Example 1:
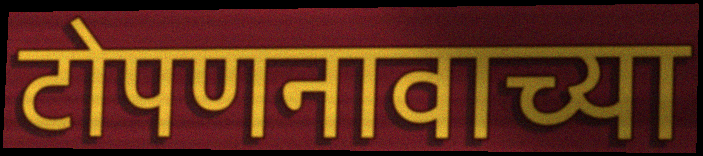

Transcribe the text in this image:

टोपणनावाच्या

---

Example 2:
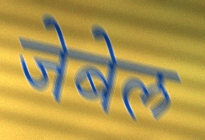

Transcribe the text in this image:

जेबेल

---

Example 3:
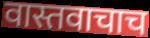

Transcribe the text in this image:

वास्तवाचाच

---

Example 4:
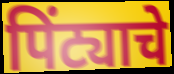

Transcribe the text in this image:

पिंट्याचे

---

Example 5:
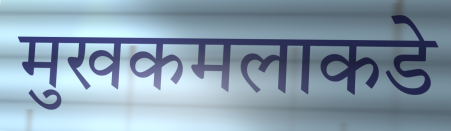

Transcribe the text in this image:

मुखकमलाकडे